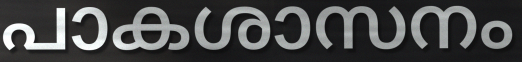
പാകശാസനം